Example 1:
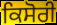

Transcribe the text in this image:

ਕਿਸੋਰੀ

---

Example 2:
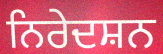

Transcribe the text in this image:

ਨਿਰੇਦਸ਼ਨ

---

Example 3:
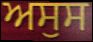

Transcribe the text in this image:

ਅਸੁਸ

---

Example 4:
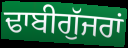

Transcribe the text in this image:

ਢਾਬੀਗੁੱਜਰਾਂ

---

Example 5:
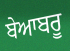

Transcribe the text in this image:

ਬੇਆਬਰੂ